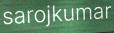
sarojkumar